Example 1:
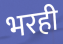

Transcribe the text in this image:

भरही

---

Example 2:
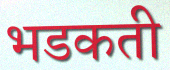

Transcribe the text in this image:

भडकती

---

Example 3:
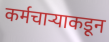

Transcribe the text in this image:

कर्मचाऱ्याकडून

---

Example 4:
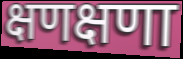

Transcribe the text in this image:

क्षणक्षणा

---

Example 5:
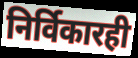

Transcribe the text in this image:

निर्विकारही